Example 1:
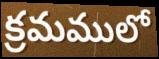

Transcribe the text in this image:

క్రమములో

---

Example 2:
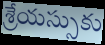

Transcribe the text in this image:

శ్రేయస్సుకు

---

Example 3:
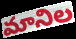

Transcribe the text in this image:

మానిల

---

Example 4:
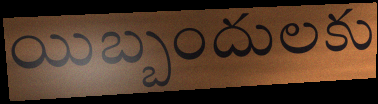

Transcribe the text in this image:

యిబ్బందులకు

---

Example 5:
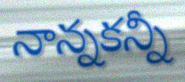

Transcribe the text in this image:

నాన్నకన్నీ